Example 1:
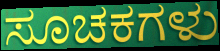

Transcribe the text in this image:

ಸೂಚಕಗಳು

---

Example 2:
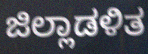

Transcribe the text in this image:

ಜಿಲ್ಲಾಡಳಿತ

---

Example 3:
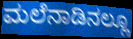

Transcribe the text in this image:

ಮಲೆನಾಡಿನಲ್ಲೂ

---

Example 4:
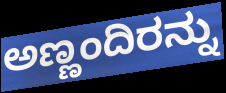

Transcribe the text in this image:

ಅಣ್ಣಂದಿರನ್ನು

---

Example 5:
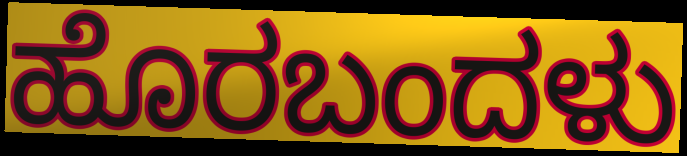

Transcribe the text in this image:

ಹೊರಬಂದಳು